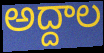
అద్దాల